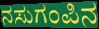
ನಸುಗಂಪಿನ